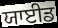
ਯਾਈਡ